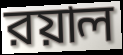
রয়াল